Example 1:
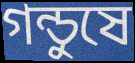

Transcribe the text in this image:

গন্ডুষে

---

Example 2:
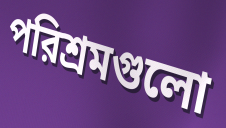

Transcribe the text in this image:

পরিশ্রমগুলো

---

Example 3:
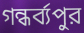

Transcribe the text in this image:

গন্ধর্ব্যপুর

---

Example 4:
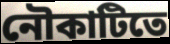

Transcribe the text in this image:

নৌকাটিতে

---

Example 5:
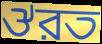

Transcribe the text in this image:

ঔরত